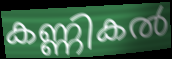
കണ്ണികൽ